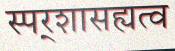
स्पर्शासह्यत्व